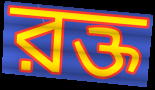
রক্ত